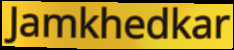
Jamkhedkar